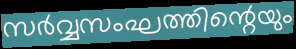
സർവ്വസംഘത്തിന്റെയും